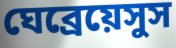
ঘেব্রেয়েসুস